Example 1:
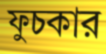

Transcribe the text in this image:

ফুচকার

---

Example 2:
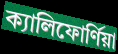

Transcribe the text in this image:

ক্যালিফোর্ণিয়া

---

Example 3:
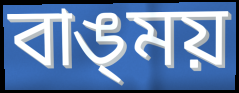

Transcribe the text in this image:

বাঙ্‌ময়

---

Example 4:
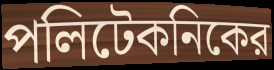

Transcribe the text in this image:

পলিটেকনিকের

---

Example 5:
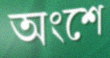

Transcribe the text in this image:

অংশে